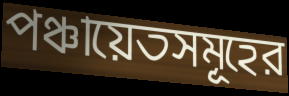
পঞ্চায়েতসমূহের